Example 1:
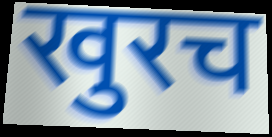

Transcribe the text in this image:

खुरच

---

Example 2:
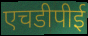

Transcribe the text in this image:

एचडीपीई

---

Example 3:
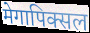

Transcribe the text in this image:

मेगापिक्सल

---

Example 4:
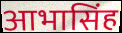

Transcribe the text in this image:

आभासिंह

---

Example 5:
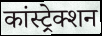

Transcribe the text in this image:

कांस्ट्रेक्शन